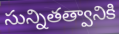
సున్నితత్వానికి